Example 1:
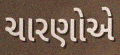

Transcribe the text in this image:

ચારણોએ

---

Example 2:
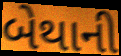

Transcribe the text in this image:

બેથાની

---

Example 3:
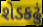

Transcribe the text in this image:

શેડકઢું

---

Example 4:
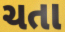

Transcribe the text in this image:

ચતા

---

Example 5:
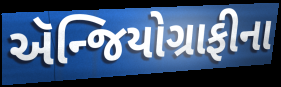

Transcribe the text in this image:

ઍન્જિયોગ્રાફીના